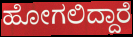
ಹೋಗಲಿದ್ದಾರೆ